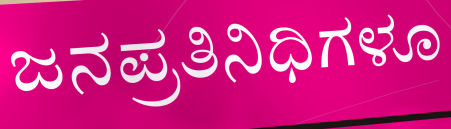
ಜನಪ್ರತಿನಿಧಿಗಳೂ